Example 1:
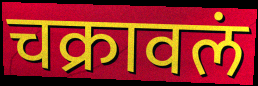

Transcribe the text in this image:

चक्रावलं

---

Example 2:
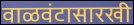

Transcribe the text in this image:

वाळवंटासारखी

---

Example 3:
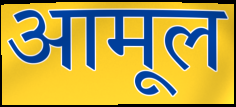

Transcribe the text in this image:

आमूल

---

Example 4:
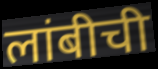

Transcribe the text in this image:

लांबीची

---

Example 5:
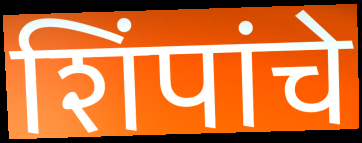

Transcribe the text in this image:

शिंपांचे